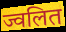
ज्वलित